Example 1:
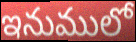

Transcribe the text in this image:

ఇనుములో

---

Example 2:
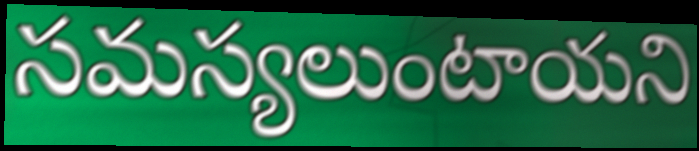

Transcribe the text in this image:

సమస్యలుంటాయని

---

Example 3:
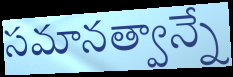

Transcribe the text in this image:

సమానత్వాన్నే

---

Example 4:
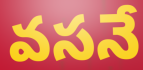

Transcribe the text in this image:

వసనే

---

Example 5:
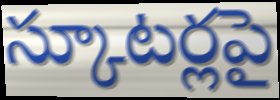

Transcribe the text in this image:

స్కూటర్లపై